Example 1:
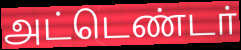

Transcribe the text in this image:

அட்டெண்டர்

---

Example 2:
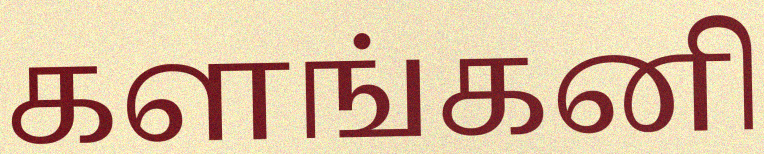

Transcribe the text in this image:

களங்கனி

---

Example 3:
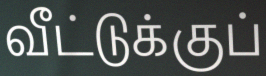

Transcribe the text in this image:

வீட்டுக்குப்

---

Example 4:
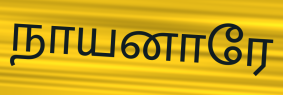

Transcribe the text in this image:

நாயனாரே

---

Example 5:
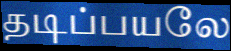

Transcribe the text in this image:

தடிப்பயலே